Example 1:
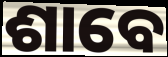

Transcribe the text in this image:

ଶାବେ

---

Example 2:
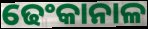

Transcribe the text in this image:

ଢେଂକାନାଳ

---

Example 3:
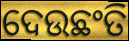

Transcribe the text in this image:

ଦେଉଛଂତି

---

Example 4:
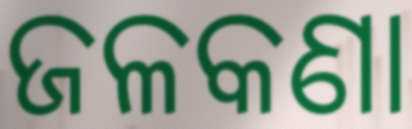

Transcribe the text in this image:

ଜଳକଣା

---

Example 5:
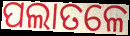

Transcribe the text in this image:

ପଲାତଳେ